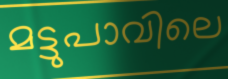
മട്ടുപാവിലെ